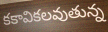
కకావికలవుతున్న